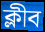
ক্লীব